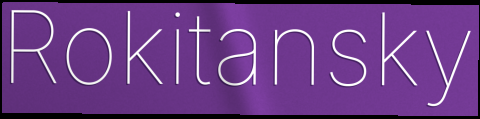
Rokitansky